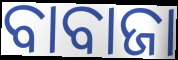
ବାବାଜା